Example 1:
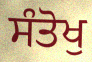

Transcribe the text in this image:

ਸੰਤੋਖੁ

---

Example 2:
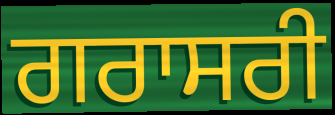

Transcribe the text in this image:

ਗਰਾਸਰੀ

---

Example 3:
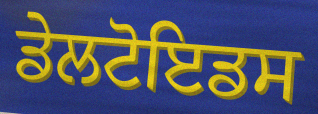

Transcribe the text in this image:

ਡੇਲਟੋਇਡਸ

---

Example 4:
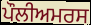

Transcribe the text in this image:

ਪੌਲੀਅਮਰਸ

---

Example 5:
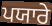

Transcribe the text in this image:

ਪਯਾਰੇ